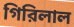
গিরিলাল